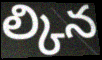
ల్కిన